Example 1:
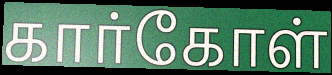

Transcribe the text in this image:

கார்கோள்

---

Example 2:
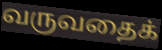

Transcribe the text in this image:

வருவதைக்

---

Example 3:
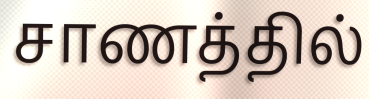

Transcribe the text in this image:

சாணத்தில்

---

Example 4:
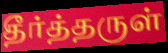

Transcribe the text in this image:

தீர்த்தருள்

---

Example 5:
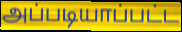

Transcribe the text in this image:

அப்படியாப்பட்ட